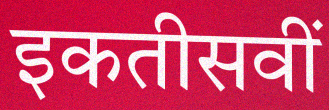
इकतीसवीं